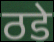
ठडे